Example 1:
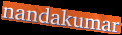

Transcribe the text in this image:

nandakumar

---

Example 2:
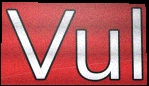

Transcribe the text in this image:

Vul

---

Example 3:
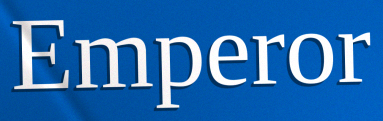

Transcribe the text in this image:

Emperor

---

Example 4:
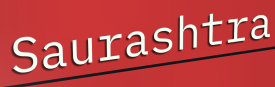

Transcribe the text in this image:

Saurashtra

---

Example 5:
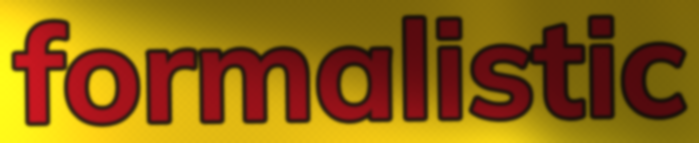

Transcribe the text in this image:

formalistic